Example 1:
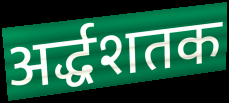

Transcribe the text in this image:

अर्द्धशतक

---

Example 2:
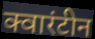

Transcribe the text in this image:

क्वारंटीन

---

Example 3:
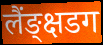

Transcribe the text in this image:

लैंङ्क्षडग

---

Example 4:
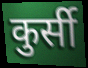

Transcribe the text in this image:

कुर्सी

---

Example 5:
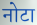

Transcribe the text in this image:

नोटा